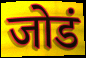
जोडं